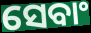
ସେବାଂ